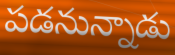
పడనున్నాడు